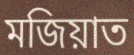
মজিয়াত